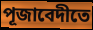
পূজাবেদীতে